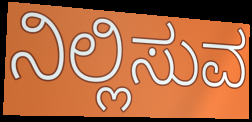
ನಿಲ್ಲಿಸುವ